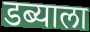
डब्याला